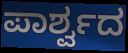
ಪಾರ್ಶ್ವದ